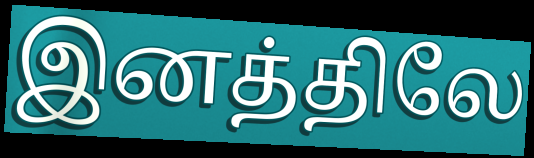
இனத்திலே